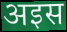
अइस